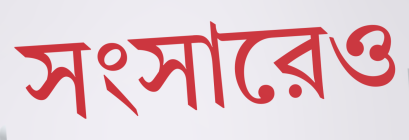
সংসারেও